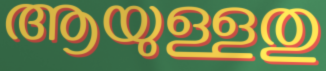
ആയുള്ളതു